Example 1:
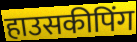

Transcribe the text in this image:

हाउसकीपिंग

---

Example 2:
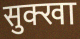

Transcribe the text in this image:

सुक्खा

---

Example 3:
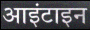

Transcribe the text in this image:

आइंटाइन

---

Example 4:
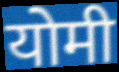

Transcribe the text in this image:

योमी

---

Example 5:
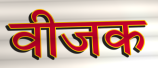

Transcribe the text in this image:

वीजक